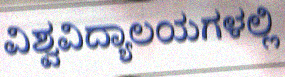
ವಿಶ್ವವಿದ್ಯಾಲಯಗಳಲ್ಲಿ